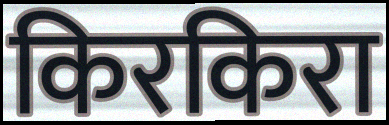
किरकिरा